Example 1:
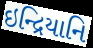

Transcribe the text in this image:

ઇન્દ્રિયાનિ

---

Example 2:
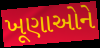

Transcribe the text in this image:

ખૂણાઓને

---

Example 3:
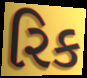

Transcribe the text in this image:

રિક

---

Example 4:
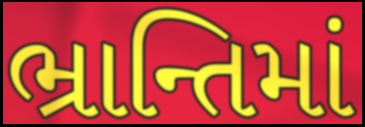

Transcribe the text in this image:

ભ્રાન્તિમાં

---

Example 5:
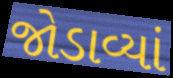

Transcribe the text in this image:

જોડાવ્યાં